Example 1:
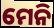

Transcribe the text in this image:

ମେନି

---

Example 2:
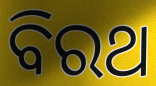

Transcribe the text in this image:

ବିରଥ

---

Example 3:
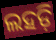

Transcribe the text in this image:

ଲହଡ଼ି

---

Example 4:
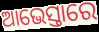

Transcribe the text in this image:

ଆଭେସ୍ତାରେ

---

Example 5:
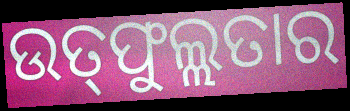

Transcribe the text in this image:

ଉତ୍‌ଫୁଲ୍ଲତାର